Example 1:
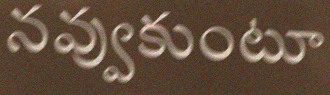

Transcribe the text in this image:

నవ్వుకుంటూ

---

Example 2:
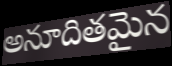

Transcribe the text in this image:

అనూదితమైన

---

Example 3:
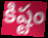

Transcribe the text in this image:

కిష్టం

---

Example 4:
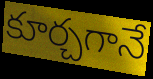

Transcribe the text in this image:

కూర్చగానే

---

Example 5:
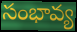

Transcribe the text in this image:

సంభావ్య